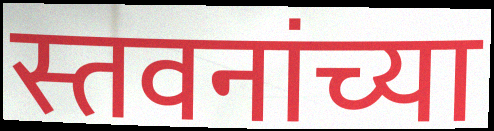
स्तवनांच्या